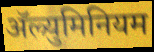
ॲल्युमिनियम